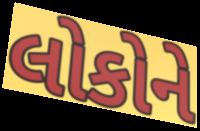
લોકોને